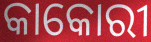
କାକୋରୀ